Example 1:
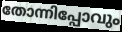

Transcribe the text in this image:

തോന്നിപ്പോവും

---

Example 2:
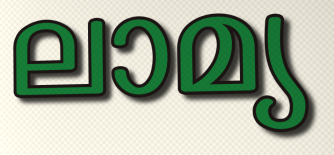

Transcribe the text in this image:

ലാമ്യ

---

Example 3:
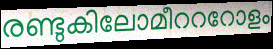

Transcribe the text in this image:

രണ്ടുകിലോമീറററോളം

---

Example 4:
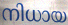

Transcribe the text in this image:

നിധായ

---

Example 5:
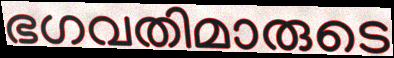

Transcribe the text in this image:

ഭഗവതിമാരുടെ